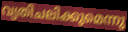
വ്യതിചലിക്കുമെന്നു